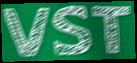
VST